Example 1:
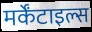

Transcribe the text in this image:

मर्केंटाइल्स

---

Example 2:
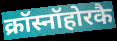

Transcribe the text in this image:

क्रॉस्नॉहोरकै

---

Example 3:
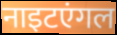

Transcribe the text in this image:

नाइटएंगल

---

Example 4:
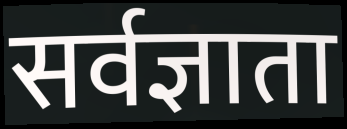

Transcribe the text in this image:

सर्वज्ञाता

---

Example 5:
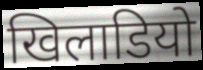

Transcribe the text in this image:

खिलाडियो